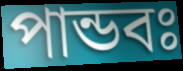
পান্ডবঃ